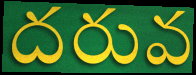
దరువ